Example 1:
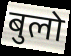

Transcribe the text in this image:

बुलो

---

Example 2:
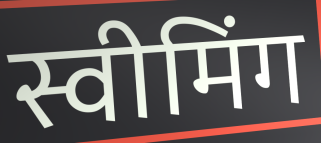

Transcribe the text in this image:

स्‍वीमिंग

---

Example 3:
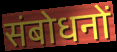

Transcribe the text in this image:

संबोधनों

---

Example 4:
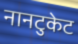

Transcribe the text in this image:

नानटुकेट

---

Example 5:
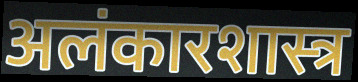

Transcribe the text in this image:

अलंकारशास्त्र